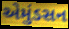
એમુંડસન